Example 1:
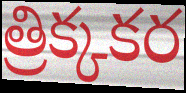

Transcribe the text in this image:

త్రిక్కకర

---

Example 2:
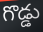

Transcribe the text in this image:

గొడ్డు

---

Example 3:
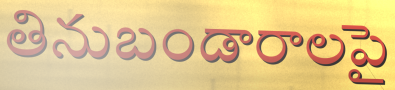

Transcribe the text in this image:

తినుబండారాలపై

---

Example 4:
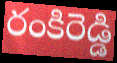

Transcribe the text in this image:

రంకిరెడ్డి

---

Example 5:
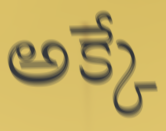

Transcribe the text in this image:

అక్కే